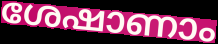
ശേഷാണാം